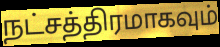
நட்சத்திரமாகவும்